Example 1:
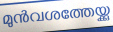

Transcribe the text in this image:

മുൻവശത്തേയ്ക്കു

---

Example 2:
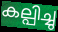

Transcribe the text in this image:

കല്പിച്ചു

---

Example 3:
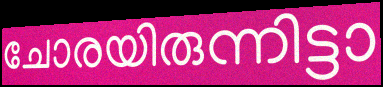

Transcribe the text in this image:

ചോരയിരുന്നിട്ടാ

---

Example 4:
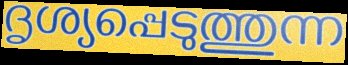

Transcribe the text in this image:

ദൃശ്യപ്പെടുത്തുന്ന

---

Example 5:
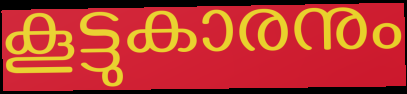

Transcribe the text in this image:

കൂട്ടുകാരനും